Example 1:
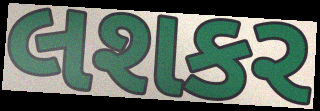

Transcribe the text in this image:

લશકર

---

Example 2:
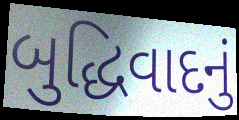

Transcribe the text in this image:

બુદ્ધિવાદનું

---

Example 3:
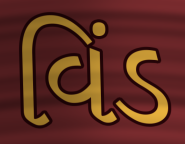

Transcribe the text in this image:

વિંડ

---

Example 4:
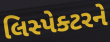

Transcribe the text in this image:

લિસ્પેક્ટરને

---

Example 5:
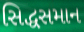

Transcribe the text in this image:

સિદ્ધસમાન